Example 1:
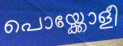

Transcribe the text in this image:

പൊയ്ക്കോളീ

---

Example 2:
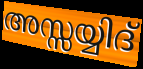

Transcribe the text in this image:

അസ്സയ്യിദ്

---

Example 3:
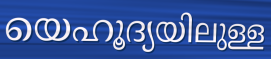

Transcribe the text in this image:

യെഹൂദ്യയിലുള്ള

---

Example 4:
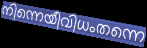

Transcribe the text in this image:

നിന്നെയീവിധംതന്നെ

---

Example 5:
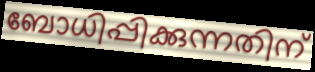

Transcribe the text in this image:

ബോധിപ്പിക്കുന്നതിന്